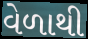
વેળાથી